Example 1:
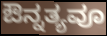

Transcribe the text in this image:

ಔನ್ನತ್ಯವೂ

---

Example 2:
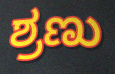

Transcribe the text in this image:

ಶ್ರಣು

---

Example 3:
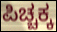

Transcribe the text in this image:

ಪಿಚ್ಚಕ್ಕ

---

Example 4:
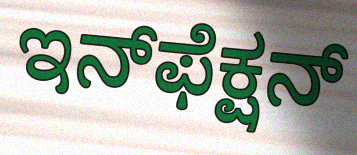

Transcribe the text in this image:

ಇನ್‌ಫೆಕ್ಷನ್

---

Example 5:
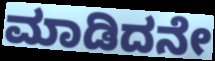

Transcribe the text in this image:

ಮಾಡಿದನೇ